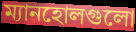
ম্যানহোলগুলো